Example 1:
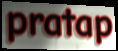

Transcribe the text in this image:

pratap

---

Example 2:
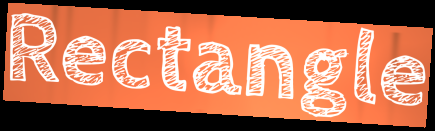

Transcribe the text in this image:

Rectangle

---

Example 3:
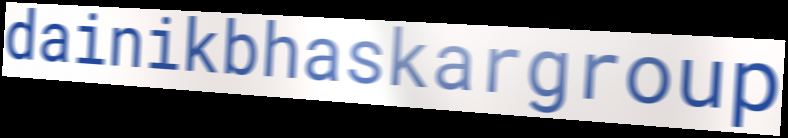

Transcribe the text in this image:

dainikbhaskargroup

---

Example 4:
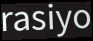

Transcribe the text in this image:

rasiyo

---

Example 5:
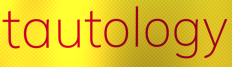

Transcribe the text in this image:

tautology